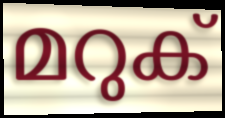
മറുക്